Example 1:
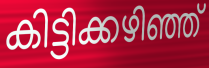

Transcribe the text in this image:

കിട്ടിക്കഴിഞ്ഞ്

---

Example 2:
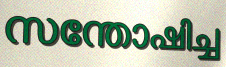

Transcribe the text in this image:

സന്തോഷിച്ച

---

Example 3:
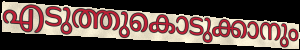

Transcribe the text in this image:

എടുത്തുകൊടുക്കാനും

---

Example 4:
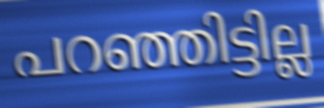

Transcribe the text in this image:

പറഞ്ഞിട്ടില്ല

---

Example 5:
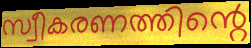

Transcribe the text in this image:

സ്വീകരണത്തിന്റെ